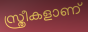
സ്ത്രീകളാണ്